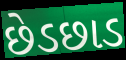
છેડછાડ